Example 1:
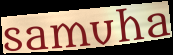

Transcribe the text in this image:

samuha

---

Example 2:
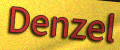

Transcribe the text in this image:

Denzel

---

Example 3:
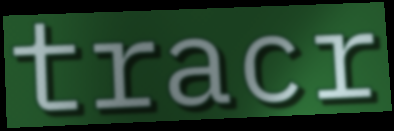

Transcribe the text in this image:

tracr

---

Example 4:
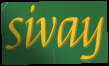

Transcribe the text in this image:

sivay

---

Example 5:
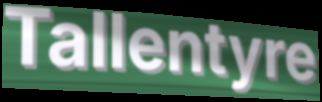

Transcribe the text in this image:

Tallentyre